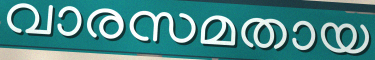
വാരസമതായ